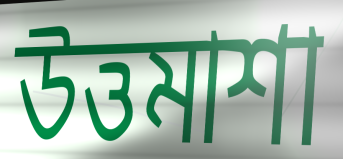
উত্তমাশা